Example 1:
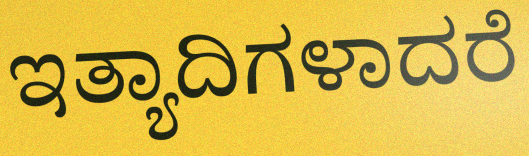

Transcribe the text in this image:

ಇತ್ಯಾದಿಗಳಾದರೆ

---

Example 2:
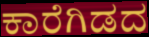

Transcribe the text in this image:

ಕಾರೆಗಿಡದ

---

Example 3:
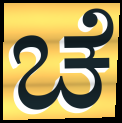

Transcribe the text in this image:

ಚೆ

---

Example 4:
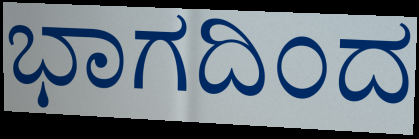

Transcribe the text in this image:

ಭಾಗದಿಂದ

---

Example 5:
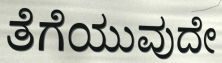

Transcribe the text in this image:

ತೆಗೆಯುವುದೇ